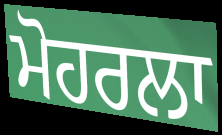
ਮੋਹਰਲਾ